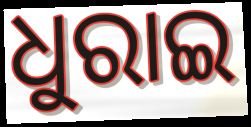
ଧୁରାଇ